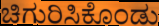
ಚಿಗುರಿಸಿಕೊಂಡು